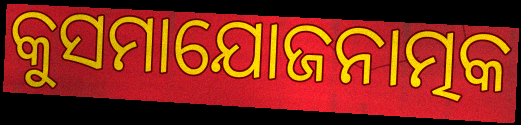
କୁସମାଯୋଜନାତ୍ମକ